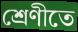
শ্রেণীতে